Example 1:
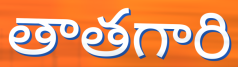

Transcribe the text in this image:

తాతగారి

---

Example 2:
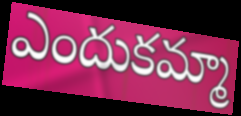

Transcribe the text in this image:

ఎందుకమ్మా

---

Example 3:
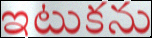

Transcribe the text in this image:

ఇటుకను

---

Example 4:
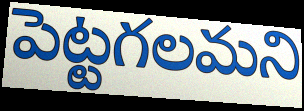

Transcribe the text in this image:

పెట్టగలమని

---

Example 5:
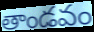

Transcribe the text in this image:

తాండవం